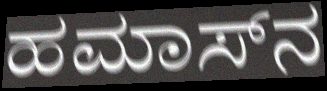
ಹಮಾಸ್‌ನ